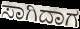
ಸಾಗಿದಾಗ